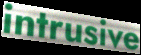
intrusive